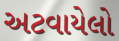
અટવાયેલો